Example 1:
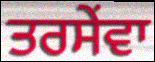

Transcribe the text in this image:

ਤਰਸੇਂਵਾ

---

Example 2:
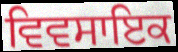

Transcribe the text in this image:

ਵਿਵਸਾਇਕ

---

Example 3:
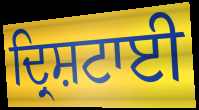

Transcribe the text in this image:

ਦ੍ਰਿਸ਼ਟਾਈ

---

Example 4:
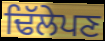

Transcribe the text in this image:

ਢਿੱਲੇਪਣ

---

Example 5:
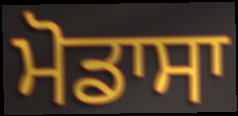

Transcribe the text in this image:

ਮੋਡਾਸਾ